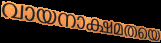
വായനാക്ഷമതയെ